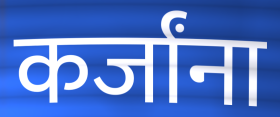
कर्जांना